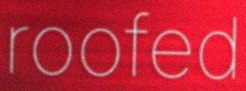
roofed